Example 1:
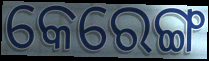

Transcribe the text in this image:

କେରେଙ୍ଗ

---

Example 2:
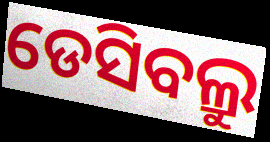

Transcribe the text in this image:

ଡେସିବଲ୍ରୁ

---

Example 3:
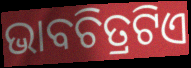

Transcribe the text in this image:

ଭାବଚିତ୍ରଟିଏ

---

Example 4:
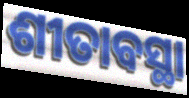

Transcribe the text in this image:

ଶୀତାବସ୍ଥା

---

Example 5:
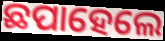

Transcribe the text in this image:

ଛପାହେଲେ